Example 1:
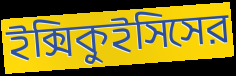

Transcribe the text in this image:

ইক্সিকুইসিসের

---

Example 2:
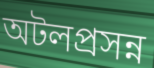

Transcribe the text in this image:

অটলপ্রসন্ন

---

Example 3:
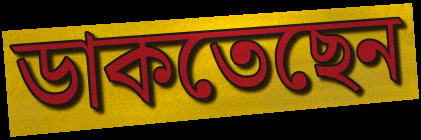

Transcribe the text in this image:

ডাকতেছেন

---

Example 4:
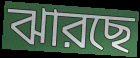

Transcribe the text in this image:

ঝারছে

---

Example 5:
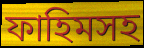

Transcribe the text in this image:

ফাহিমসহ